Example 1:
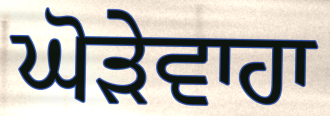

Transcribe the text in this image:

ਘੋੜੇਵਾਹਾ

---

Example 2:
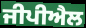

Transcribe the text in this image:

ਜੀਪੀਐਲ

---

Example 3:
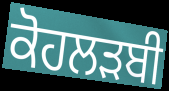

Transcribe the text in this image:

ਕੋਹਲੜਬੀ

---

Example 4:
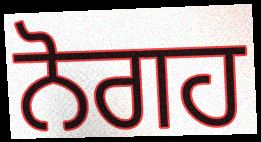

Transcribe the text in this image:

ਨੋਗਹ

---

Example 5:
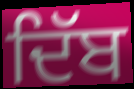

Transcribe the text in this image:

ਦਿੱਬ